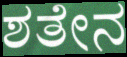
ಶತೇನ